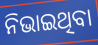
ନିଭାଇଥିବା